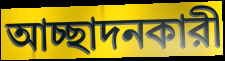
আচ্ছাদনকারী